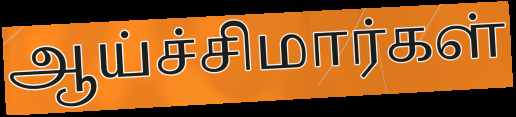
ஆய்ச்சிமார்கள்